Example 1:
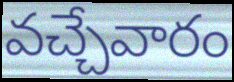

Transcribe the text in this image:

వచ్చేవారం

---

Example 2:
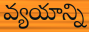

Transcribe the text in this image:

వ్యయాన్ని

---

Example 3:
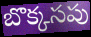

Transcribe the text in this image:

బొక్కసపు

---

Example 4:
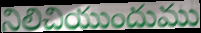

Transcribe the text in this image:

నిలిచియుందుము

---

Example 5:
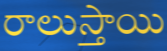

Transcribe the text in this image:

రాలుస్తాయి